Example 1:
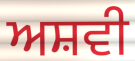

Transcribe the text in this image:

ਅਸ਼ਵੀ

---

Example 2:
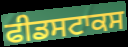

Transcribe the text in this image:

ਫੀਡਸਟਾਕਸ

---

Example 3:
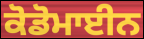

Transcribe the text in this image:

ਕੋਡੋਮਾਈਨ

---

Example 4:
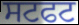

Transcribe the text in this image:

ਸਟਫਟ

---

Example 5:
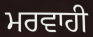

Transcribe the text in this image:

ਮਰਵਾਹੀ